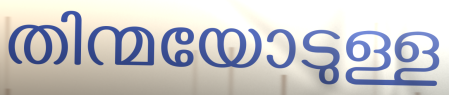
തിന്മയോടുള്ള